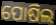
ପୋଷିଲ